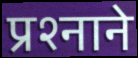
प्रश्नाने